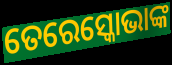
ତେରେସ୍କୋଭାଙ୍କ